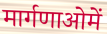
मार्गणाओमें